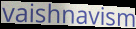
vaishnavism